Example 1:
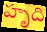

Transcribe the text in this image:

హృది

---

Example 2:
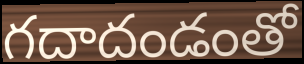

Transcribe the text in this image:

గదాదండంతో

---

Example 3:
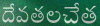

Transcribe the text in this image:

దేవతలచేత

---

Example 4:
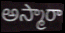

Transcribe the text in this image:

అస్మారా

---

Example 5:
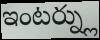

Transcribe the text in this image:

ఇంటర్న్లు